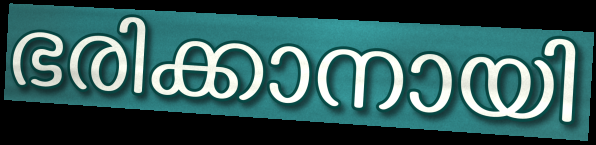
ഭരിക്കാനായി